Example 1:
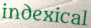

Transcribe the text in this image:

indexical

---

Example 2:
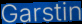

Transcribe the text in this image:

Garstin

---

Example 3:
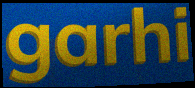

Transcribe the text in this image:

garhi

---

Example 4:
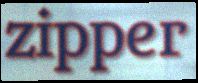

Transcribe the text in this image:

zipper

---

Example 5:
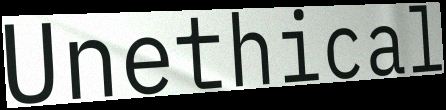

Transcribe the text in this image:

Unethical